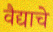
वैद्याचे